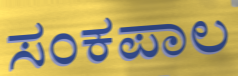
ಸಂಕಪಾಲ